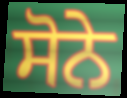
ਸੋਨੇ